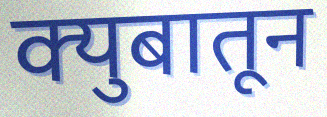
क्युबातून